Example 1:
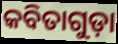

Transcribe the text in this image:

କବିତାଗୁଡ଼ା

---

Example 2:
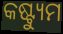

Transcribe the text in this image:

କଷ୍ଟ୍ୟୁମ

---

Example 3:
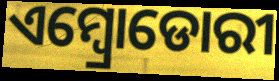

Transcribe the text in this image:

ଏମ୍ବ୍ରୋଡୋରୀ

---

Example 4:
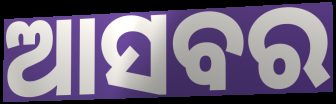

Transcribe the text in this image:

ଆସବର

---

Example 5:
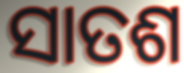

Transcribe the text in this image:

ସାତଶ